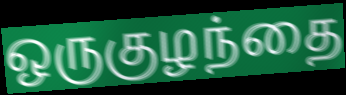
ஒருகுழந்தை